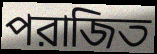
পরাজিত